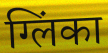
ग्लिंका